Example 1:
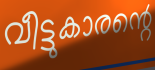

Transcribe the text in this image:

വീട്ടുകാരന്റെ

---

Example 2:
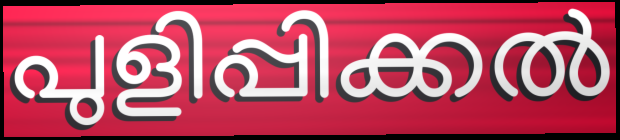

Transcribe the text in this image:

പുളിപ്പിക്കൽ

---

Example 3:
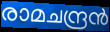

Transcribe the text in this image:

രാമചന്ദ്രൻ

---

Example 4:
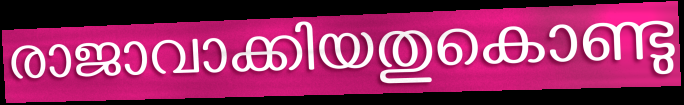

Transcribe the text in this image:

രാജാവാക്കിയതുകൊണ്ടു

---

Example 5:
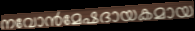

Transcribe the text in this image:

നവോൻമേഷദായകമായ